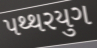
પથ્થરયુગ